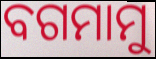
ବଗମାମୁ